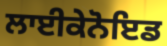
ਲਾਈਕੇਨੋਇਡ